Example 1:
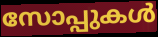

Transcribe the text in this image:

സോപ്പുകൾ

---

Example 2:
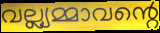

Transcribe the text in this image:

വല്ല്യമ്മാവന്റെ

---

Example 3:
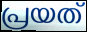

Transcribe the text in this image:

പ്രയത്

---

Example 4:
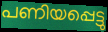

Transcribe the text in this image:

പണിയപ്പെട്ടു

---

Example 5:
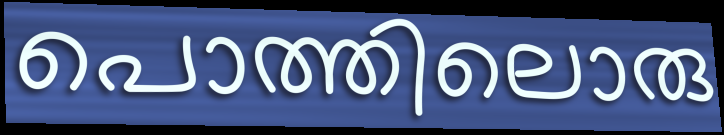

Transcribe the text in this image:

പൊത്തിലൊരു